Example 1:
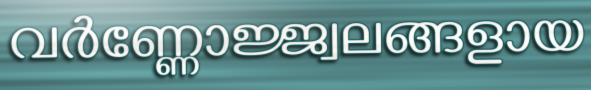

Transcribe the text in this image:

വർണ്ണോജ്ജ്വലങ്ങളായ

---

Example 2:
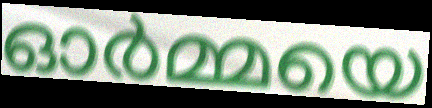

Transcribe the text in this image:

ഓർമ്മയെ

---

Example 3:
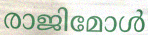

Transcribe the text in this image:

രാജിമോൾ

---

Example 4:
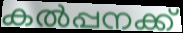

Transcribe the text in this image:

കൽപ്പനക്ക്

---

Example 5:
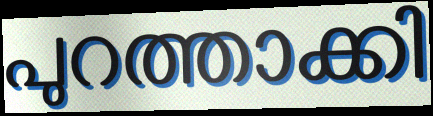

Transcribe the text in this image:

പുറത്താക്കി